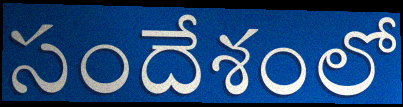
సందేశంలో